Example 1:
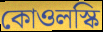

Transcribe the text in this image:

কোওলস্কি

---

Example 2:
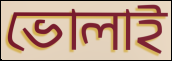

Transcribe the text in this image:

ভোলাই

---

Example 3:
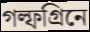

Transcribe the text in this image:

গল্ফগ্রিনে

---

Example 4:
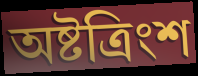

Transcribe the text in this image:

অষ্টত্রিংশ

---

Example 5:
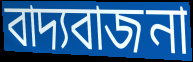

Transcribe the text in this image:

বাদ্যবাজনা